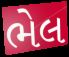
ભેલ